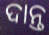
ଦାନ୍ତ